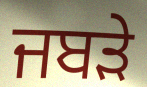
ਜਬੜੇ